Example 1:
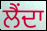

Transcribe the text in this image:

ਲੈਂਦਾ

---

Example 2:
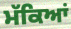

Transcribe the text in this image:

ਮੱਕਿਆਂ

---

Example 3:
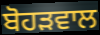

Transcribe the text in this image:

ਬੋਹੜਵਾਲ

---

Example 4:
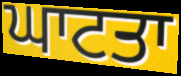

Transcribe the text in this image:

ਘਾਟਤਾ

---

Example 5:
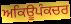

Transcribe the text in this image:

ਅਕਿਊਪੰਕਚਰ